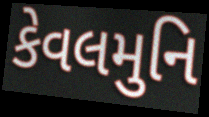
કેવલમુનિ